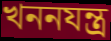
খননযন্ত্র